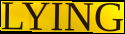
LYING